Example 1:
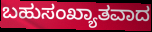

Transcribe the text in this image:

ಬಹುಸಂಖ್ಯಾತವಾದ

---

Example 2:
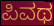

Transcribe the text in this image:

ಪಿವಥ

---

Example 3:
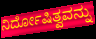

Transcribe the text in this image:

ನಿರ್ದೋಷಿತ್ವವನ್ನು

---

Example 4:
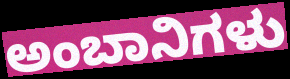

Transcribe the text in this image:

ಅಂಬಾನಿಗಳು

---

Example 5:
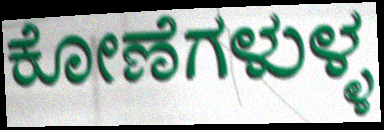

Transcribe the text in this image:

ಕೋಣೆಗಳುಳ್ಳ